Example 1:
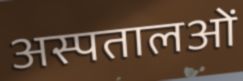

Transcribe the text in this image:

अस्पतालओं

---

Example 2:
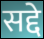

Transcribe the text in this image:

सद्दे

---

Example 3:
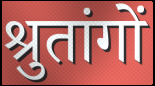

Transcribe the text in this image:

श्रुतांगों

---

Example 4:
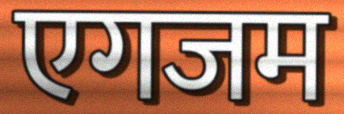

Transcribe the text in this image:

एगजम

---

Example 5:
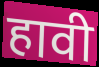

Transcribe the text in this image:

हावी